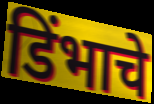
डिंभाचे